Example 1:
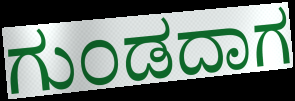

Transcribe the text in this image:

ಗುಂಡದಾಗ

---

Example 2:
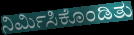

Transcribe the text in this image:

ನಿರ್ಮಿಸಿಕೊಂಡಿತು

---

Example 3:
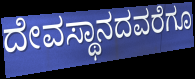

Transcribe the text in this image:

ದೇವಸ್ಥಾನದವರೆಗೂ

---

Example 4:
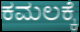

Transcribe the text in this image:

ಕಮಲಕ್ಕೆ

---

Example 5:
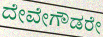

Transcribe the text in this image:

ದೇವೇಗೌಡರೇ